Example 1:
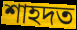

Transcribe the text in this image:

শাহদত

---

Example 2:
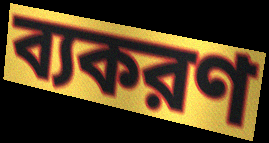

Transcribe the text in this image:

ব্যকরণ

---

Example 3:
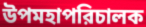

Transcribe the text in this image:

উপমহাপরিচালক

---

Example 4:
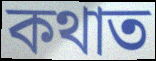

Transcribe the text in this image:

কথাত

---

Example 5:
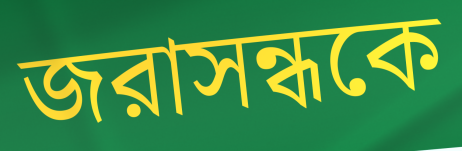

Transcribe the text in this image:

জরাসন্ধকে